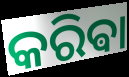
କରିଵା